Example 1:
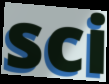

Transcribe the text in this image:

sci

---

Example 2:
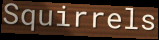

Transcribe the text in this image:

Squirrels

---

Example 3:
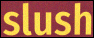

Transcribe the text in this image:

slush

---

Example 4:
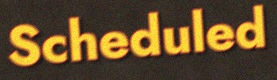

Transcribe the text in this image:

Scheduled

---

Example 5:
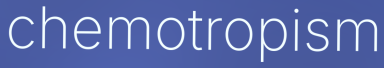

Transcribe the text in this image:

chemotropism